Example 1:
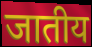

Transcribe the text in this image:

जातीय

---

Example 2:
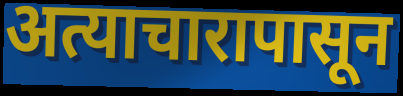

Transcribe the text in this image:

अत्याचारापासून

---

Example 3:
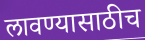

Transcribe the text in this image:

लावण्यासाठीच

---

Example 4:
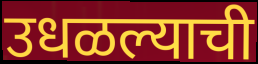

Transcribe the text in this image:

उधळल्याची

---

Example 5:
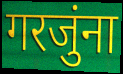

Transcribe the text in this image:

गरजुंना